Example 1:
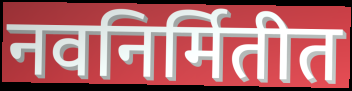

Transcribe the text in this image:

नवनिर्मितीत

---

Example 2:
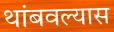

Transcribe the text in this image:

थांबवल्यास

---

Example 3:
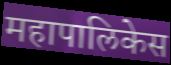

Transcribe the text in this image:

महापालिकेस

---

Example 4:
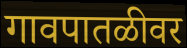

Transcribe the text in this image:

गावपातळीवर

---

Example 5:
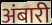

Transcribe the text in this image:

अंबारी